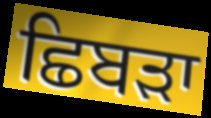
ਛਿਬੜਾ